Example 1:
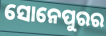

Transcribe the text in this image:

ସୋନେପୁରର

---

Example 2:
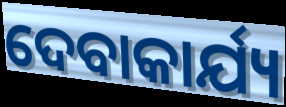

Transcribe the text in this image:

ଦେବାକାର୍ଯ୍ୟ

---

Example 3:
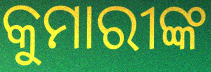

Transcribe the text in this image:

କୁମାରୀଙ୍କ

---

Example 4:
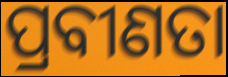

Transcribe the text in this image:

ପ୍ରବୀଣତା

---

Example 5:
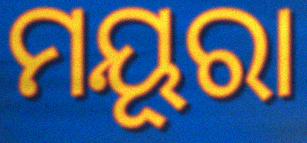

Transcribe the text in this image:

ମୟୂରା